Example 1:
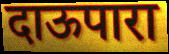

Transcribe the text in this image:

दाऊपारा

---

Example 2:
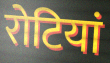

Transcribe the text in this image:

रोटियां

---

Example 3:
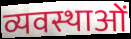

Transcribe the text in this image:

व्यवस्थाओें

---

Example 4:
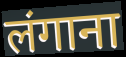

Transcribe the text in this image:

लंगाना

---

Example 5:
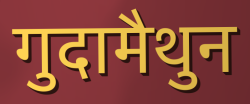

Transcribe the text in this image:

गुदामैथुन